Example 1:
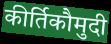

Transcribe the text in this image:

कीर्तिकौमुदी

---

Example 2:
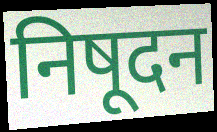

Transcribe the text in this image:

निषूदन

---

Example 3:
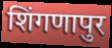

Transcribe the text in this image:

शिंगणापुर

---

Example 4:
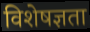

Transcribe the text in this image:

विशेषज्ञता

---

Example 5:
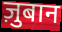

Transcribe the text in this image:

ज़ुबान